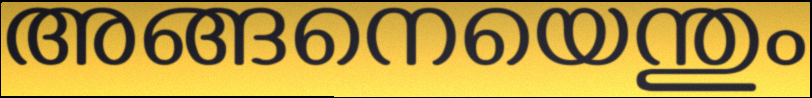
അങ്ങനെയെന്തും